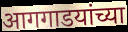
आगगाडयांच्या